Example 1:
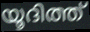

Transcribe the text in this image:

യൂദിത്ത്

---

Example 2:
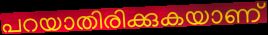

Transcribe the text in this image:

പറയാതിരിക്കുകയാണ്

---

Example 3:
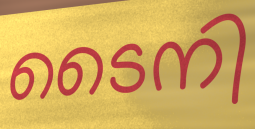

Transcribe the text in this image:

ടൈനി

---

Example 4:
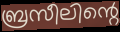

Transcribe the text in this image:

ബ്രസീലിന്റെ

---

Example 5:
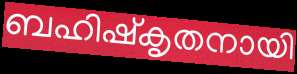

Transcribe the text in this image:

ബഹിഷ്കൃതനായി